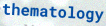
thematology